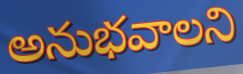
అనుభవాలని